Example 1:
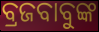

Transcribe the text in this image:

ବ୍ରଜବାବୁଙ୍କ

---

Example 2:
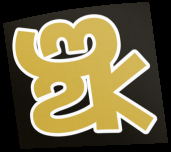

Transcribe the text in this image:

ଞ୍ଝ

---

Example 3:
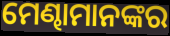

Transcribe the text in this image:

ମେଣ୍ଢାମାନଙ୍କର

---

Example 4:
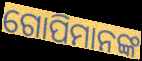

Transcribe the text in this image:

ଗୋପିମାନଙ୍କ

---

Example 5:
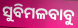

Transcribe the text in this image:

ସୁବିମଳବାବୁ